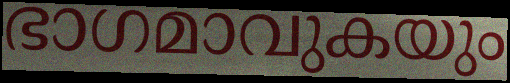
ഭാഗമാവുകയും